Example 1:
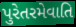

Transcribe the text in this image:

પુરેતરમેવાતિ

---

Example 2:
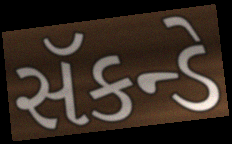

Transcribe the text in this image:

સૅકન્ડે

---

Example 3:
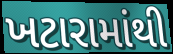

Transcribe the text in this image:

ખટારામાંથી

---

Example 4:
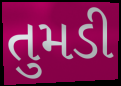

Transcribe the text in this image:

તુમડી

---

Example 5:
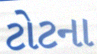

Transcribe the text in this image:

ટોટના